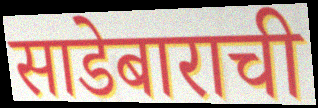
साडेबाराची